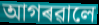
আগৰৱালে